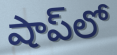
షాప్‌లో